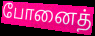
போனைத்